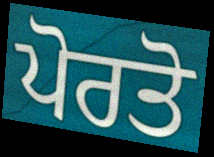
ਪੋਰਤੋ